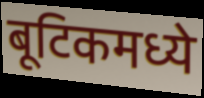
बूटिकमध्ये